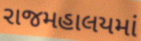
રાજમહાલયમાં